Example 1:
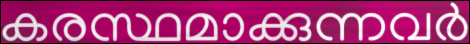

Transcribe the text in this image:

കരസ്ഥമാക്കുന്നവർ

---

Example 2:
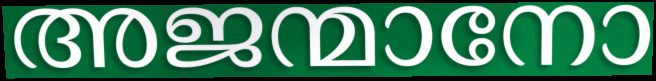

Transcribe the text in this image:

അജന്മാനോ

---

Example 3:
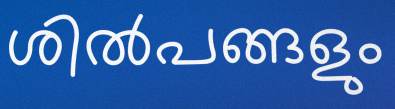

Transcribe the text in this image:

ശിൽപങ്ങളും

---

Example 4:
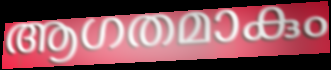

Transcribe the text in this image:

ആഗതമാകും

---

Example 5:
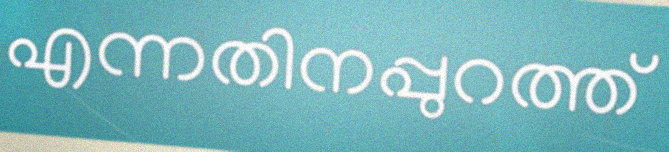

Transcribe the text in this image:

എന്നതിനപ്പുറത്ത്